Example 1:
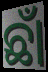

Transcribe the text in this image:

ଛାଁ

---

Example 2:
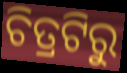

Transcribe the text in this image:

ଚିତ୍ରଟିରୁ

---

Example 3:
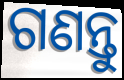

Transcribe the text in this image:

ଗଣନ୍ତୁ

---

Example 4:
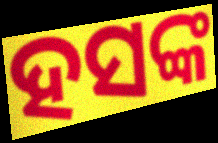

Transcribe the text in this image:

ହସଙ୍କ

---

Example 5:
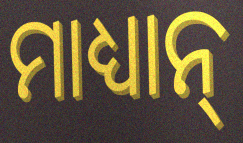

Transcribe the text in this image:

ମାଧ୍ୟାନ୍